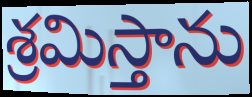
శ్రమిస్తాను